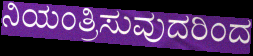
ನಿಯಂತ್ರಿಸುವುದರಿಂದ